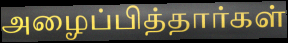
அழைப்பித்தார்கள்